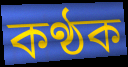
কণ্ঠক